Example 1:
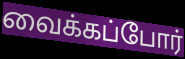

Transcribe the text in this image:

வைக்கப்போர்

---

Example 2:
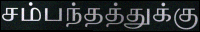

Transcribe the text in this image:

சம்பந்தத்துக்கு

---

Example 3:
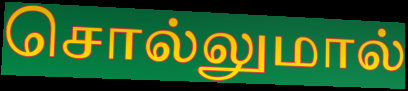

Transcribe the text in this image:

சொல்லுமால்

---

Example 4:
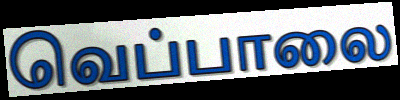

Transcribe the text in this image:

வெப்பாலை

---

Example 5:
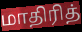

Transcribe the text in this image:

மாதிரித்